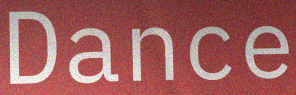
Dance